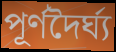
পূর্ণদৈর্ঘ্য